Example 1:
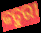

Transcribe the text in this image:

କତୁରୀ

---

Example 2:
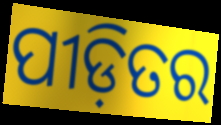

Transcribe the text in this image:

ପୀଡ଼ିତର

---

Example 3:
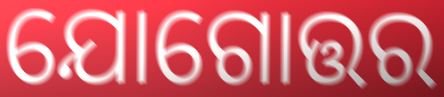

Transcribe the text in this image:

ଯୋଗୋତ୍ତର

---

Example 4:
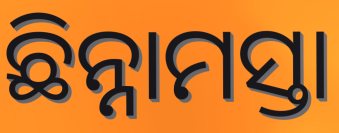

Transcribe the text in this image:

ଛିନ୍ନାମସ୍ତା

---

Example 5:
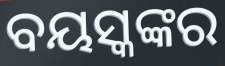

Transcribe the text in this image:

ବୟସ୍କଙ୍କର